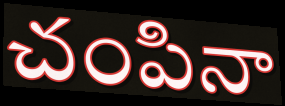
చంపినా